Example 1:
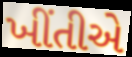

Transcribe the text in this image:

ખીંતીએ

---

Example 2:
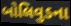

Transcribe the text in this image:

બોલિવુડના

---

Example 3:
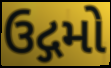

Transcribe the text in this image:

ઉદ્ગમો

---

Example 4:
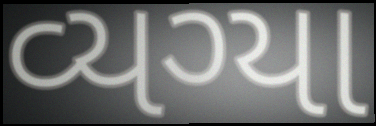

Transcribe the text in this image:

વ્યગ્યા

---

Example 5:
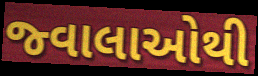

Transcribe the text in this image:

જ્વાલાઓથી